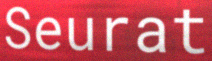
Seurat